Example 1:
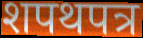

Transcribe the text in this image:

शपथपत्र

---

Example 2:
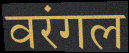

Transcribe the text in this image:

वरंगल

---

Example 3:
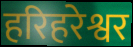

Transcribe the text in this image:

हरिहरेश्वर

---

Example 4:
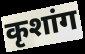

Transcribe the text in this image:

कृशांग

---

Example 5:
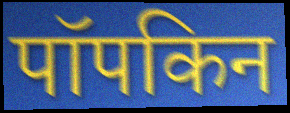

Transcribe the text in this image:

पॉपकिन